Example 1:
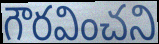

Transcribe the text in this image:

గౌరవించని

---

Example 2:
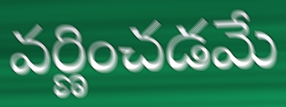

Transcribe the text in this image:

వర్ణించడమే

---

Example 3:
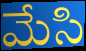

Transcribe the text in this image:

మేసి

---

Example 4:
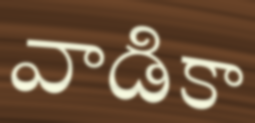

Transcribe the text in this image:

వాడికా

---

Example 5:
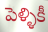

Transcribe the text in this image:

పెళ్ళికీ